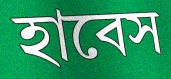
হাবেস